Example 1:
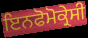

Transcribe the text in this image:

ਇਨਫੋਮੋਕ੍ਰੇਸੀ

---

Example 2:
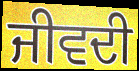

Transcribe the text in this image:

ਜੀਵਦੀ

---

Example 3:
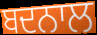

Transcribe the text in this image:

ਬਦਨਾਲ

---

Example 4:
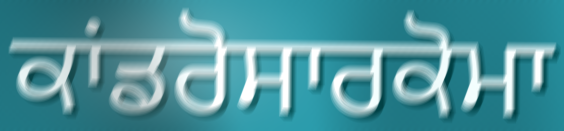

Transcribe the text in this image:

ਕਾਂਡਰੋਸਾਰਕੋਮਾ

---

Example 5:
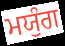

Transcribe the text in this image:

ਮਯੁੰਗ